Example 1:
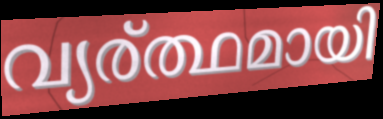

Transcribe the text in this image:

വ്യര്ത്ഥമായി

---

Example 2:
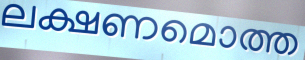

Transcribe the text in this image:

ലക്ഷണമൊത്ത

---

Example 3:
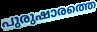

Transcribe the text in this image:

പുരുഷാരത്തെ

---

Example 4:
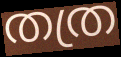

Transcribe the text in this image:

തത്ര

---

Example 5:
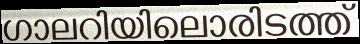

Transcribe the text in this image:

ഗാലറിയിലൊരിടത്ത്